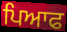
ਪਿਆਫ